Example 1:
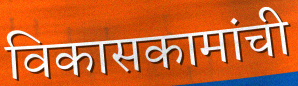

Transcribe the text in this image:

विकासकामांची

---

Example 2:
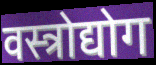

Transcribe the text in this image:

वस्त्रोद्योग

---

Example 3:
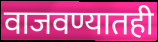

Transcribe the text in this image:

वाजवण्यातही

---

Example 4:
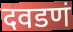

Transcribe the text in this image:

दवडणं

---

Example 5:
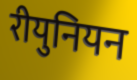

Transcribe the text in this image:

रीयुनियन